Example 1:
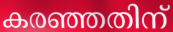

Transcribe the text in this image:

കരഞ്ഞതിന്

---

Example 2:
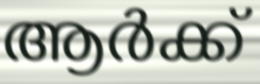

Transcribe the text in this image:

ആർക്ക്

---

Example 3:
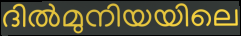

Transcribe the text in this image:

ദിൽമുനിയയിലെ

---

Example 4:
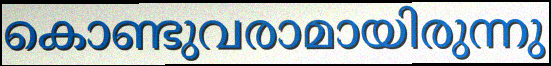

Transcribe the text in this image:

കൊണ്ടുവരാമായിരുന്നു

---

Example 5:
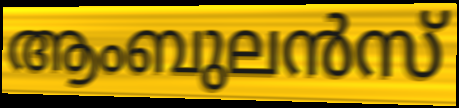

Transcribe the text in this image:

ആംബുലൻസ്